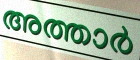
അത്താർ